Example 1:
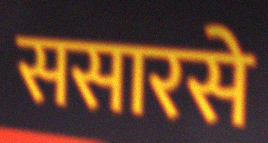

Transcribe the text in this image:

ससारसे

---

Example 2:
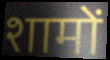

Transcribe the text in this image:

शामों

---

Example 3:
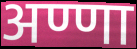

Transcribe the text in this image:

अण्णा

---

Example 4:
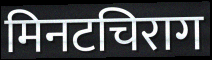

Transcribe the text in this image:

मिनटचिराग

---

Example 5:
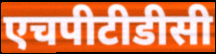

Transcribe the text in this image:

एचपीटीडीसी